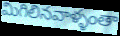
మిగిలినవాళ్ళంతా